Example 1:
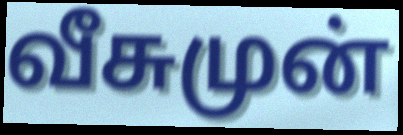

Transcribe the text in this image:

வீசுமுன்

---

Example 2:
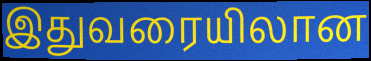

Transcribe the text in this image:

இதுவரையிலான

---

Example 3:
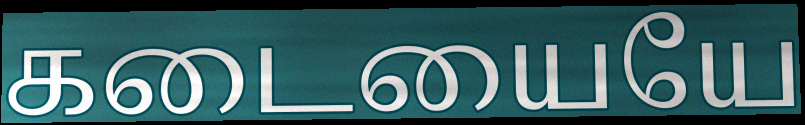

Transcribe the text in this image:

கடையையே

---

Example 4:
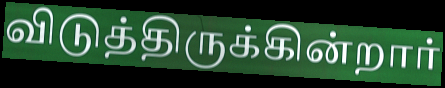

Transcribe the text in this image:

விடுத்திருக்கின்றார்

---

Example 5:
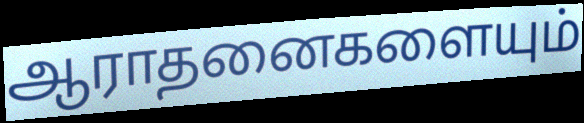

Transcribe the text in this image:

ஆராதனைகளையும்